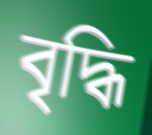
বৃদ্ধি